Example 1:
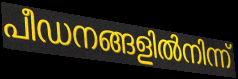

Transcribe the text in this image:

പീഡനങ്ങളിൽനിന്ന്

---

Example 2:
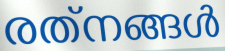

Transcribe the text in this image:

രത്‌നങ്ങൾ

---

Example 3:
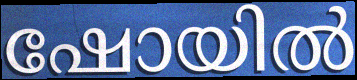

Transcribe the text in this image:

ഷോയിൽ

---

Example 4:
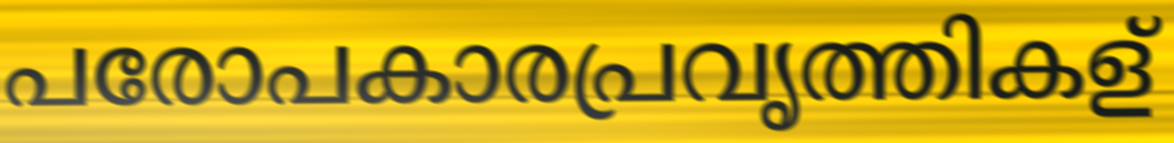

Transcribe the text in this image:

പരോപകാരപ്രവൃത്തികള്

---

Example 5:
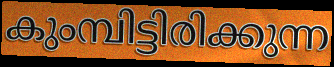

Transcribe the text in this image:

കുംമ്പിട്ടിരിക്കുന്ന